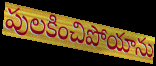
పులకించిపోయాను